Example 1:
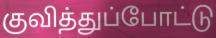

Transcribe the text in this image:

குவித்துப்போட்டு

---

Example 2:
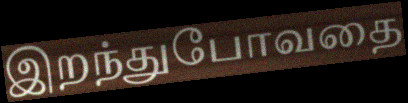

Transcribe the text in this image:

இறந்துபோவதை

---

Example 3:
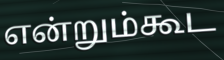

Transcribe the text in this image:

என்றும்கூட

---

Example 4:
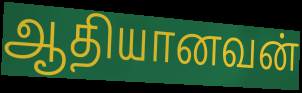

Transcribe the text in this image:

ஆதியானவன்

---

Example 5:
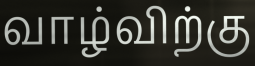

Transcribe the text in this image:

வாழ்விற்கு